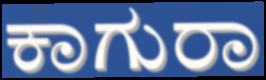
ಕಾಗುರಾ